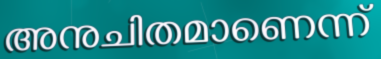
അനുചിതമാണെന്ന്